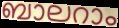
ബാലറാം